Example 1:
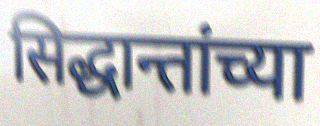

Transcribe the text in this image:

सिद्धान्तांच्या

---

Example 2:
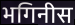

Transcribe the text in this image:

भगिनीस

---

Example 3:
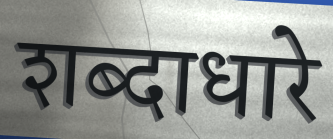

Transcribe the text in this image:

शब्दाधारे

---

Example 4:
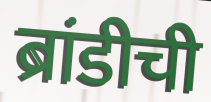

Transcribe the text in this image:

ब्रांडीची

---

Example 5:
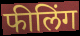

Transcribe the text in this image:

फीलिंग